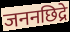
जननछिद्रे